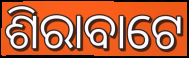
ଶିରାବାଟେ